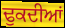
ਢੁਕਦੀਆਂ